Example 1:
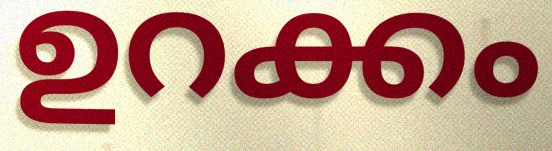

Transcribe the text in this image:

ഉറക്കം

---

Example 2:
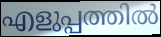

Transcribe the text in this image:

എളുപ്പത്തിൽ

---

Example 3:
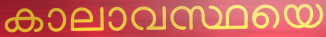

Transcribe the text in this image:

കാലാവസ്ഥയെ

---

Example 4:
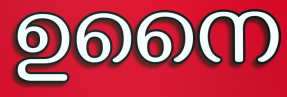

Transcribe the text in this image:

ഉനൈ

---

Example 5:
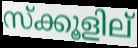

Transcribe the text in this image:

സ്ക്കൂളില്